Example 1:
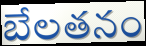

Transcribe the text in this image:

బేలతనం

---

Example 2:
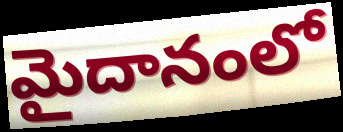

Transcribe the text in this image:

మైదానంలో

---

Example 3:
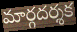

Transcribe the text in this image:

మార్గదర్శక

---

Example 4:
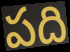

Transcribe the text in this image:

పది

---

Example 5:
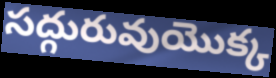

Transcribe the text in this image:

సద్గురువుయొక్క